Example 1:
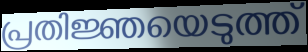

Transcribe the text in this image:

പ്രതിജ്ഞയെടുത്ത്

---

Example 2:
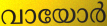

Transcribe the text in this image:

വായോർ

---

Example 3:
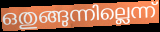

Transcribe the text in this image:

ഒതുങ്ങുന്നില്ലെന്ന്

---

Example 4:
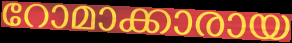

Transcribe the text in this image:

റോമാക്കാരായ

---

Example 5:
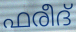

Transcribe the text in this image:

ഫരീദ്